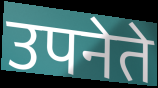
उपनेते